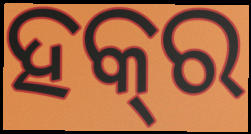
ହକ୍‌ର